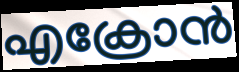
എക്രോൻ